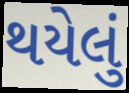
થયેલું